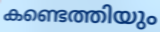
കണ്ടെത്തിയും